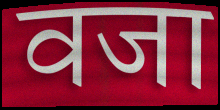
वजा